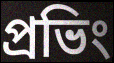
প্রভিং